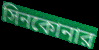
সিনকোনার